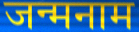
जन्मनाम